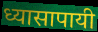
ध्यासापायी